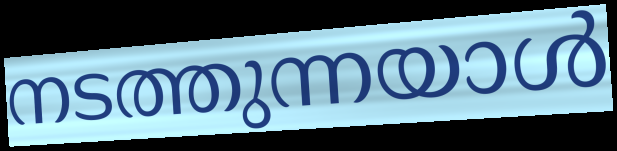
നടത്തുന്നയാൾ